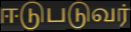
ஈடுபடுவர்